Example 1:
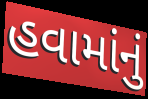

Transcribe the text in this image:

હવામાંનું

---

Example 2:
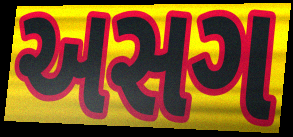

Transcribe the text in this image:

અસગ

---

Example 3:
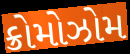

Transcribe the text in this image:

ક્રોમોઝોમ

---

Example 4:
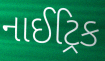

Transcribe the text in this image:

નાઈટ્રિક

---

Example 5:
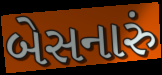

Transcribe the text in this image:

બેસનારું